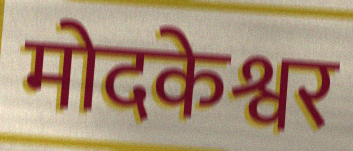
मोदकेश्वर